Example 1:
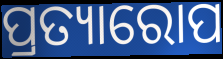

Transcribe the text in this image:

ପ୍ରତ୍ୟାରୋପ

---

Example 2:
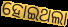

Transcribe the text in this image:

ହୋଇଥଲା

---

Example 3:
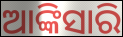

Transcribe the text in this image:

ଆଙ୍କିସାରି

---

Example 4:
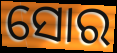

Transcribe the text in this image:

ସୋର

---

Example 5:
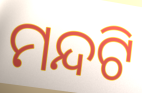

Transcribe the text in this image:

ମନ୍ଦଟି